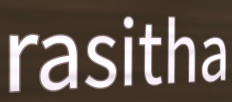
rasitha